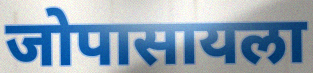
जोपासायला